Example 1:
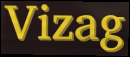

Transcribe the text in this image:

Vizag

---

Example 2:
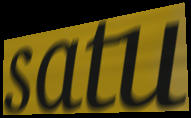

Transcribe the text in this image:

satu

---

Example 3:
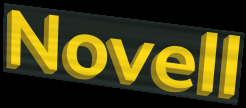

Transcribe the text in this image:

Novell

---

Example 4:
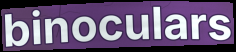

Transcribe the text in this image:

binoculars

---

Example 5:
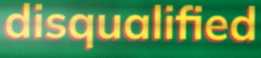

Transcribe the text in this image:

disqualified